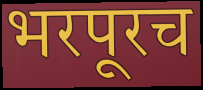
भरपूरच